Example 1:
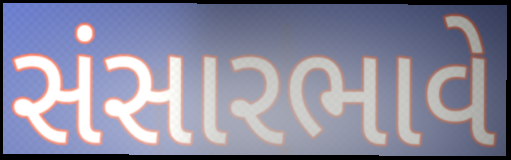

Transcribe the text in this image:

સંસારભાવે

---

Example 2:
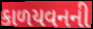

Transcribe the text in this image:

કાળયવનની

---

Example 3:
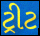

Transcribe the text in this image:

ટ્રીટ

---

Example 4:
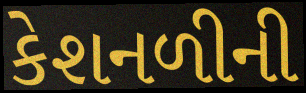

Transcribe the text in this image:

કેશનળીની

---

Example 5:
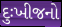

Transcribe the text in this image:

દુઃખીજનો